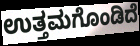
ಉತ್ತಮಗೊಂಡಿದೆ